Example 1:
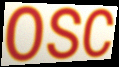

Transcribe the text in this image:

OSC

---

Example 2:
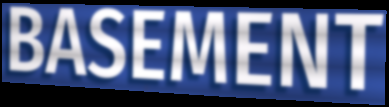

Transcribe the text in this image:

BASEMENT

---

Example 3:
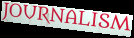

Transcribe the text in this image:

JOURNALISM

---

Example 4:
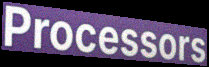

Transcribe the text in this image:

Processors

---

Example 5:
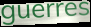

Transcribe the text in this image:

guerres